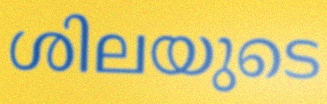
ശിലയുടെ